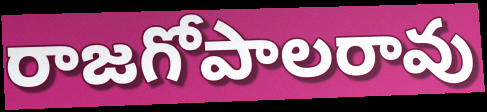
రాజగోపాలరావు